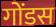
गोंडस